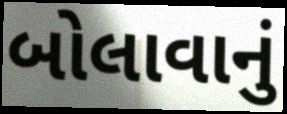
બોલાવાનું